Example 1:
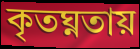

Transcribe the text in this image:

কৃতঘ্নতায়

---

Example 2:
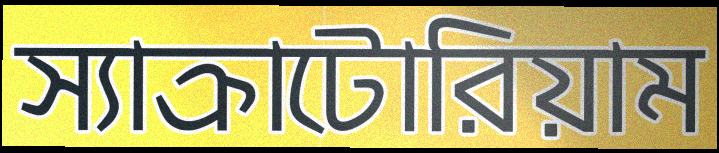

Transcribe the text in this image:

স্যাক্রাটোরিয়াম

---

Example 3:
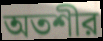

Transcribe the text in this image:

অতশীর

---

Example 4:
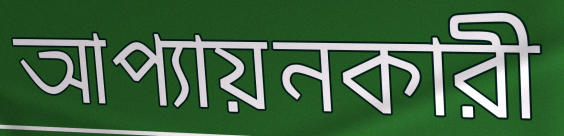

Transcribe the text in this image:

আপ্যায়নকারী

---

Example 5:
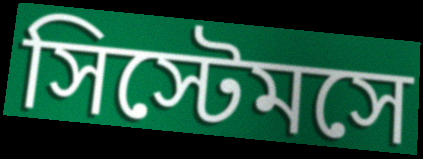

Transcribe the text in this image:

সিস্টেমসে